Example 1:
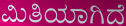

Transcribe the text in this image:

ಮಿತಿಯಾಗಿದೆ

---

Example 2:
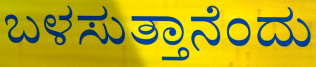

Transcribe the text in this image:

ಬಳಸುತ್ತಾನೆಂದು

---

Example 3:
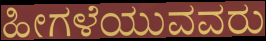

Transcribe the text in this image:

ಹೀಗಳೆಯುವವರು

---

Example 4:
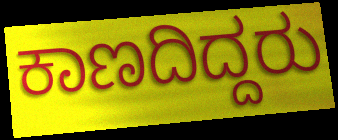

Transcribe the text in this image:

ಕಾಣದಿದ್ದರು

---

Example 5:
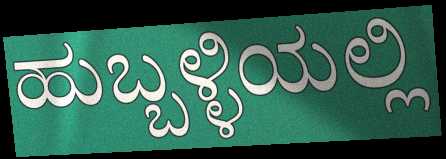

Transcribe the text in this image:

ಹುಬ್ಬಳ್ಳಿಯಲ್ಲಿ